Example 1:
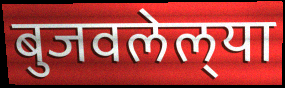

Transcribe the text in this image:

बुजवलेल्या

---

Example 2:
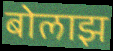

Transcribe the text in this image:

बोलाझ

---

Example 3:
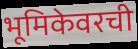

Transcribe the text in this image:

भूमिकेवरची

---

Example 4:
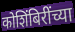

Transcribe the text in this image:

कोशिंबिरींच्या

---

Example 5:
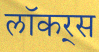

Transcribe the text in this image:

लॉकर्स